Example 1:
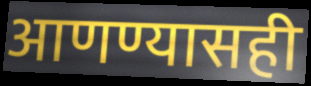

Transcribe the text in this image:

आणण्यासही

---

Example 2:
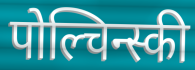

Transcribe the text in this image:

पोल्चिन्स्की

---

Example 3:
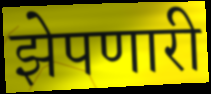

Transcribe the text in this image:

झेपणारी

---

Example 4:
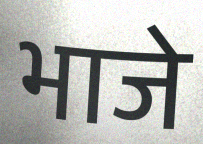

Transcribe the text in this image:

भाजे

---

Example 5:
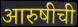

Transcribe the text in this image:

आरुषीची